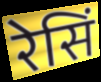
रेसिं